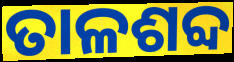
ତାଳଶବ୍ଦ